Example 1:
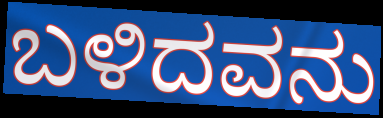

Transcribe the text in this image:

ಬಳಿದವನು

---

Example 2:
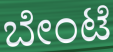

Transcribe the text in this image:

ಬೇಂಟೆ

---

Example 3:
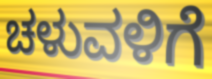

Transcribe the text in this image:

ಚಳುವಳಿಗೆ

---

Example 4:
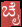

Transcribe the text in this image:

ಚೈ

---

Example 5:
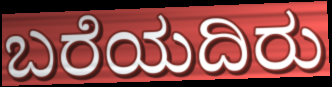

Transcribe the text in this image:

ಬರೆಯದಿರು